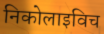
निकोलाइविच